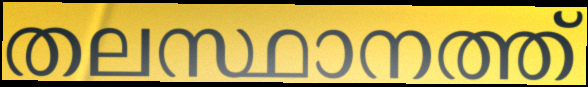
തലസ്ഥാനത്ത്